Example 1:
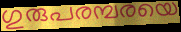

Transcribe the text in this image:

ഗുരുപരമ്പരയെ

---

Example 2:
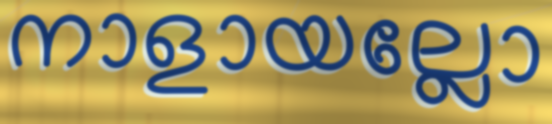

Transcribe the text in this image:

നാളായല്ലോ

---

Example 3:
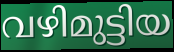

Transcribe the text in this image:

വഴിമുട്ടിയ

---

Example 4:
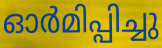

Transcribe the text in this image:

ഓർമിപ്പിച്ചു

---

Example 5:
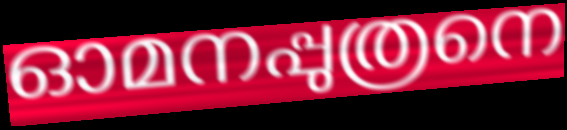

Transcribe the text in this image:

ഓമനപ്പുത്രനെ